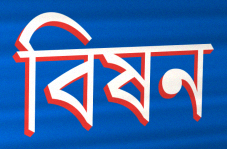
বিষন